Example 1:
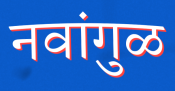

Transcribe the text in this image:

नवांगुळ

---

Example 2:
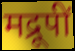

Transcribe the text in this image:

मद्रूपीं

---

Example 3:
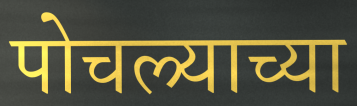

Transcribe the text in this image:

पोचल्याच्या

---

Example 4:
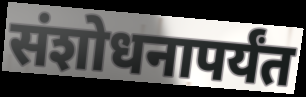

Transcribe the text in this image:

संशोधनापर्यंत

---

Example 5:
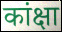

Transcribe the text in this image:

कांक्षा